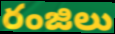
రంజిలు